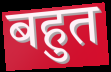
बहुत